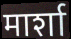
मार्शा